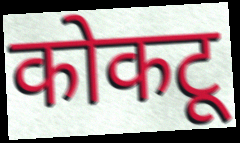
कोकटू